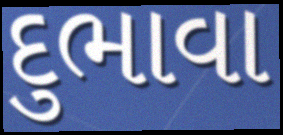
દુભાવા